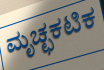
ಮೃಚ್ಛಕಟಿಕ